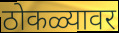
ठोकळ्यावर